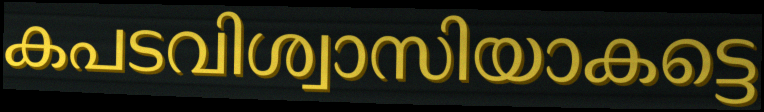
കപടവിശ്വാസിയാകട്ടെ